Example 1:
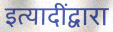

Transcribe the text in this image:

इत्यादींद्वारा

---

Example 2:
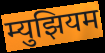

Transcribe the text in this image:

म्युझियम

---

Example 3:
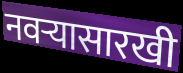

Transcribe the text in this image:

नवऱ्यासारखी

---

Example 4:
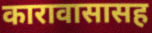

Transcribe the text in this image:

कारावासासह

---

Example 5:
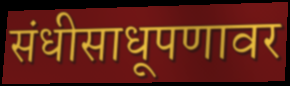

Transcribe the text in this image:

संधीसाधूपणावर